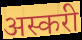
अस्करी